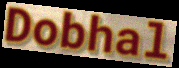
Dobhal